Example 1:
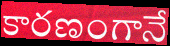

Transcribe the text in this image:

కారణంగానే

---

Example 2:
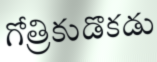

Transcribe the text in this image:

గోత్రికుడొకడు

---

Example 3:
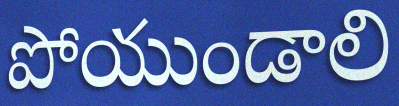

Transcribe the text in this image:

పోయుండాలి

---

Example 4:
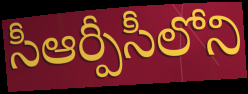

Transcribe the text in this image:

సీఆర్పీసీలోని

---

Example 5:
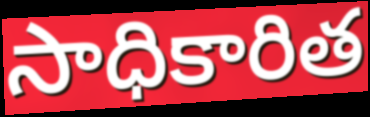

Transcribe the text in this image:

సాధికారిత